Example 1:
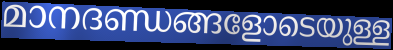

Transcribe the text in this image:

മാനദണ്ഡങ്ങളോടെയുള്ള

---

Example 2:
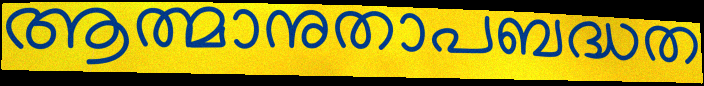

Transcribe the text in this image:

ആത്മാനുതാപബദ്ധത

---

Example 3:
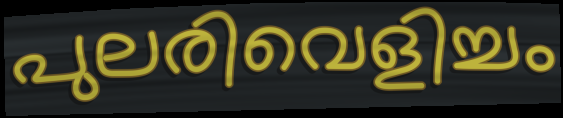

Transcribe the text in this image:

പുലരിവെളിച്ചം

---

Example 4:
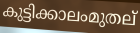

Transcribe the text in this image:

കുട്ടിക്കാലംമുതല്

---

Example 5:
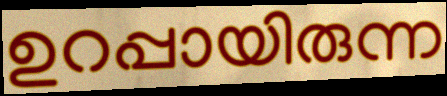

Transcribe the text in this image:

ഉറപ്പായിരുന്ന